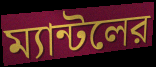
ম্যান্টলের